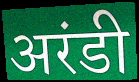
अरंडी